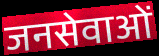
जनसेवाओं